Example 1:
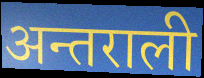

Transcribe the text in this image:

अन्तराली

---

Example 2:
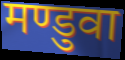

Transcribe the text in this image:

मण्डुवा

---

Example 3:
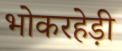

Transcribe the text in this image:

भोकरहेड़ी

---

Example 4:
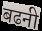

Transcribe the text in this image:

बढनी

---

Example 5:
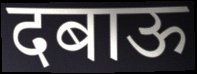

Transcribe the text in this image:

दबाऊ